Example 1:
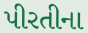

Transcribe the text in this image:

પીરતીના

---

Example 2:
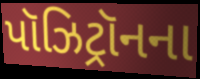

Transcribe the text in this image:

પૉઝિટ્રૉનના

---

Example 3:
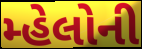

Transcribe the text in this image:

મ્હેલોની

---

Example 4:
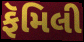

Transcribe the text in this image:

ફૅમિલી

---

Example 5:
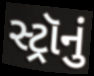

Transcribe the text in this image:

સ્ટ્રૉનું